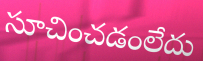
సూచించడంలేదు